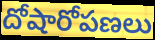
దోషారోపణలు